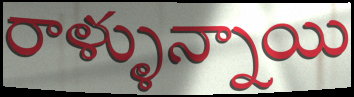
రాళ్ళున్నాయి